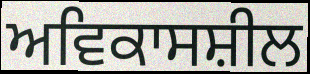
ਅਵਿਕਾਸਸ਼ੀਲ